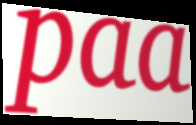
paa